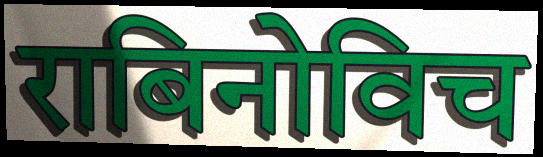
राबिनोविच